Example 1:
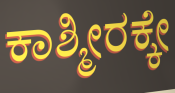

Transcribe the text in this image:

ಕಾಶ್ಮೀರಕ್ಕೇ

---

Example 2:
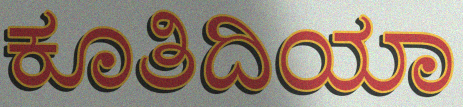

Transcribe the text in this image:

ಕೂತಿದಿಯಾ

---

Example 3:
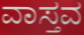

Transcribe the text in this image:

ವಾಸ್ತವ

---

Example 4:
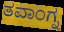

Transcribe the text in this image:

ತವಾಂಗ್ನ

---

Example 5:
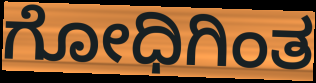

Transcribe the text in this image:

ಗೋಧಿಗಿಂತ